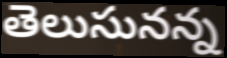
తెలుసునన్న